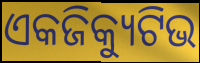
ଏକଜିକ୍ୟୁଟିଭ